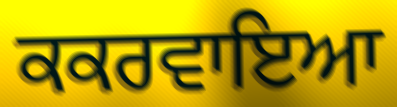
ਕਕਰਵਾਇਆ